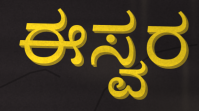
ಈಸ್ವರ